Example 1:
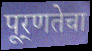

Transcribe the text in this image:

पूर्णतेचा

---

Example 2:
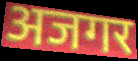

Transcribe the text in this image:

अजगर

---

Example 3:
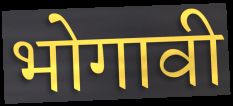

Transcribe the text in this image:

भोगावी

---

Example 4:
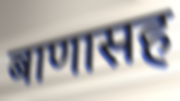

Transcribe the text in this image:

बाणासह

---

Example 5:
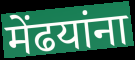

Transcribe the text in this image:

मेंढयांना